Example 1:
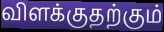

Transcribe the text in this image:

விளக்குதற்கும்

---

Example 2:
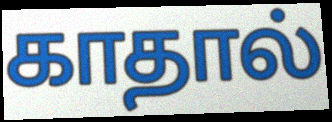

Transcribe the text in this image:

காதால்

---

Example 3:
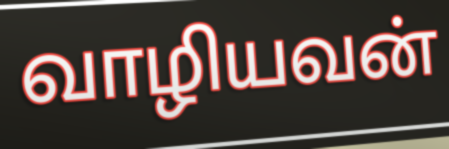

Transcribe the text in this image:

வாழியவன்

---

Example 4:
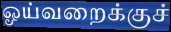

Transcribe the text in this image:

ஓய்வறைக்குச்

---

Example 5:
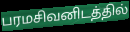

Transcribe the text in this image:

பரமசிவனிடத்தில்